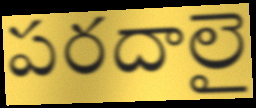
పరదాలై